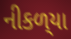
નીકળ્‌યા